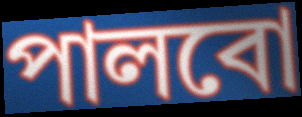
পালবো